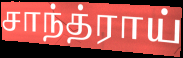
சாந்த்ராய்